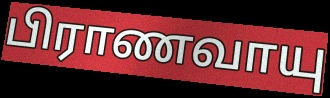
பிராணவாயு